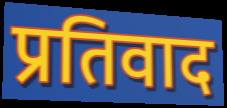
प्रतिवाद